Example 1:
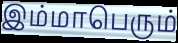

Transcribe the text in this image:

இம்மாபெரும்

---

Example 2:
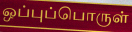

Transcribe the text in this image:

ஒப்புப்பொருள்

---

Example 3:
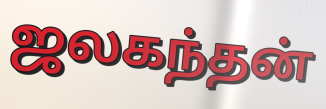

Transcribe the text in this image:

ஜலகந்தன்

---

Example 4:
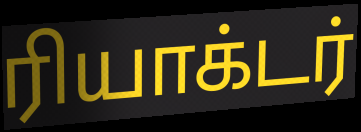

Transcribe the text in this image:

ரியாக்டர்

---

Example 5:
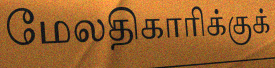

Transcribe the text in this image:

மேலதிகாரிக்குக்